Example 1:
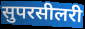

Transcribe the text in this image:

सुपरसीलरी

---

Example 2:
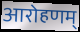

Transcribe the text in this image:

आरोहणम्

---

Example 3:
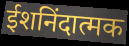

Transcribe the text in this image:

ईशनिंदात्मक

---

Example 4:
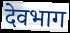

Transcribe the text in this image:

देवभाग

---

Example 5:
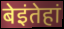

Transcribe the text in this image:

बेइंतेहां